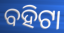
ବହିଟା